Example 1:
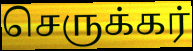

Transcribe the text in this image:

செருக்கர்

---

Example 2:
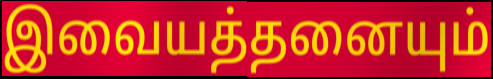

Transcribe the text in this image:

இவையத்தனையும்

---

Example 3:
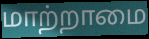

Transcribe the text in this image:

மாற்றாமை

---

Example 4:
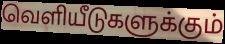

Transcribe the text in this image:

வெளியீடுகளுக்கும்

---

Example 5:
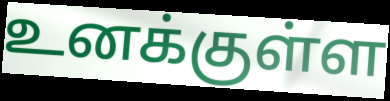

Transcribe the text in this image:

உனக்குள்ள